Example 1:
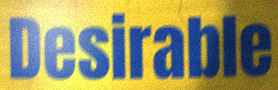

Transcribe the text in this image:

Desirable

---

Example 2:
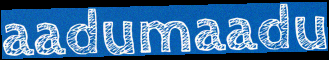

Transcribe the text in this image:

aadumaadu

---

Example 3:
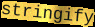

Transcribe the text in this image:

stringify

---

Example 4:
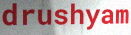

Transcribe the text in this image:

drushyam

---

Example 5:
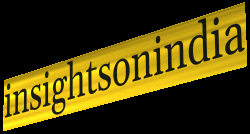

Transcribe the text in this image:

insightsonindia